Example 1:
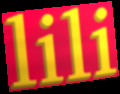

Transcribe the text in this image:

lili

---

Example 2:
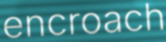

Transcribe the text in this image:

encroach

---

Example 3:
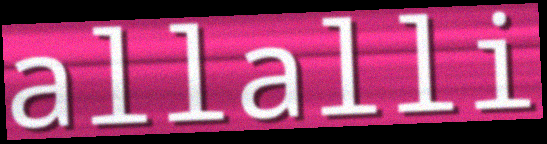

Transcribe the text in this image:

allalli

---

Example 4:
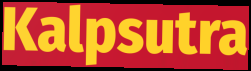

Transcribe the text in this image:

Kalpsutra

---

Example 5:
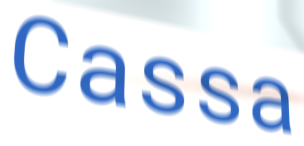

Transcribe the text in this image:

Cassa